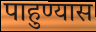
पाहुण्यास